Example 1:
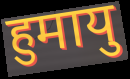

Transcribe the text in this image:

हुमायु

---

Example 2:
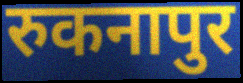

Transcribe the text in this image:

रुकनापुर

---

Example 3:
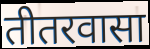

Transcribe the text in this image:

तीतरवासा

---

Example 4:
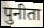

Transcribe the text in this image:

पुनीता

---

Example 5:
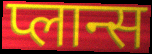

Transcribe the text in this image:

प्लान्स